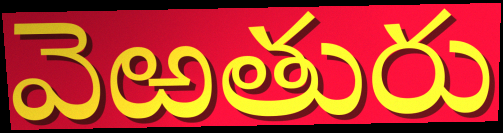
వెఱతురు